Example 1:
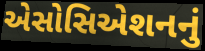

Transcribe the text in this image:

એસોસિએશનનું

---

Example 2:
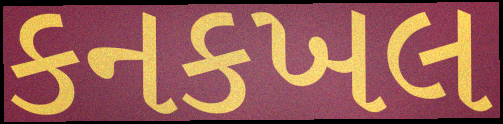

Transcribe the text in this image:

કનકખલ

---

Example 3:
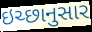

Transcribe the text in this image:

ઇચ્છાનુસાર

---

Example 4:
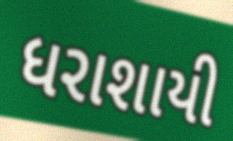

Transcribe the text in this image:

ધરાશાયી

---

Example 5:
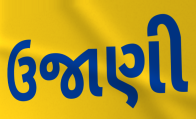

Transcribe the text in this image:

ઉજાણી